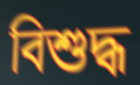
বিশুদ্ধ